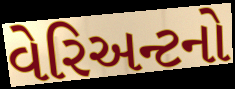
વેરિઅન્ટનો